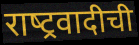
राष्ट्रवादीची